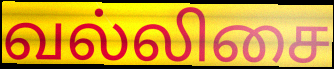
வல்லிசை